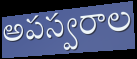
అపస్వరాల